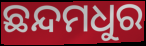
ଛନ୍ଦମଧୁର